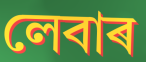
লেবাৰ